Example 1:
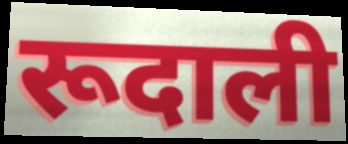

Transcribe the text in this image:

रूदाली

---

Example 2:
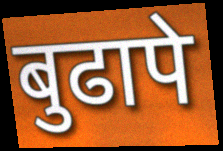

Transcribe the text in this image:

बुढापे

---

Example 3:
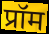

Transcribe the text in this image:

प्रॉम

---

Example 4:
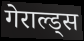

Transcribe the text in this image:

गेराल्ड्स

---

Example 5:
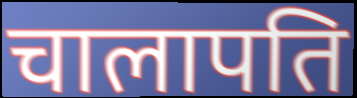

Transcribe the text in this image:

चालापति